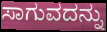
ಸಾಗುವದನ್ನು